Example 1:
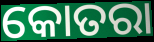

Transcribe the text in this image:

କୋତରା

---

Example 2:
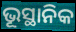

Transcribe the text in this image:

ଭୂସ୍ଥାନିକ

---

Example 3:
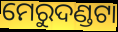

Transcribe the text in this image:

ମେରୁଦଣ୍ଡଟା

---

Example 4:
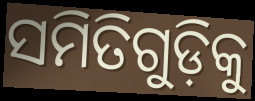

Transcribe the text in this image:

ସମିତିଗୁଡ଼ିକୁ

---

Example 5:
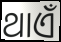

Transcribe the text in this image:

ଥାଏଁ